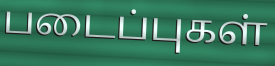
படைப்புகள்